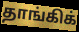
தாங்கிக்